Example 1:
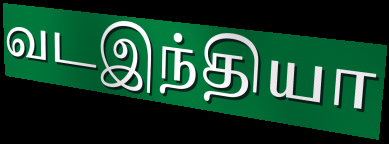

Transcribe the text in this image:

வடஇந்தியா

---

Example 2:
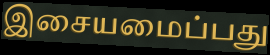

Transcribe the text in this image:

இசையமைப்பது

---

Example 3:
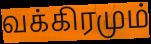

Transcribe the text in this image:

வக்கிரமும்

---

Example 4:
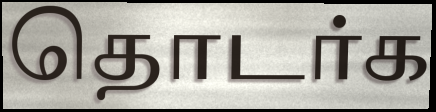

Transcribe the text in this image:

தொடர்க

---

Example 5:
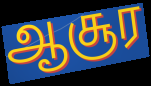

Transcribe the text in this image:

ஆசூர